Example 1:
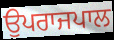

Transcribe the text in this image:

ਉਪਰਾਜਪਾਲ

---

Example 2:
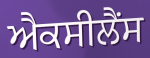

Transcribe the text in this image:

ਐਕਸੀਲੈਂਸ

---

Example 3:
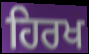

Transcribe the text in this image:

ਹਿਰਖ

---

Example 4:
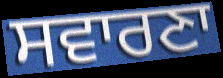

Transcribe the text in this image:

ਸਵਾਰਣਾ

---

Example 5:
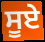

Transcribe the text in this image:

ਸੂਏ